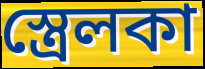
স্ত্রেলকা